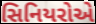
સિનિયરોએ